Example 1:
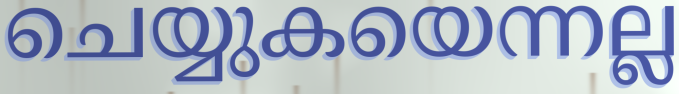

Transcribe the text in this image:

ചെയ്യുകയെന്നല്ല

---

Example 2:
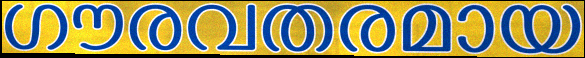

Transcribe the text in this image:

ഗൗരവതരമായ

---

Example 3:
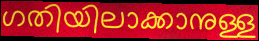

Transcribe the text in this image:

ഗതിയിലാക്കാനുള്ള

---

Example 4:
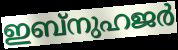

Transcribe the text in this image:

ഇബ്നുഹജർ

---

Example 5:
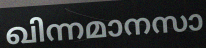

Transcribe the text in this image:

ഖിന്നമാനസാ